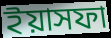
ইয়াসফা